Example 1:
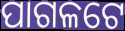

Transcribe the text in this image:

ପାଗଳଟେ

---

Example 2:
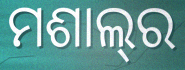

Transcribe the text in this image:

ମଶାଲ୍‌ର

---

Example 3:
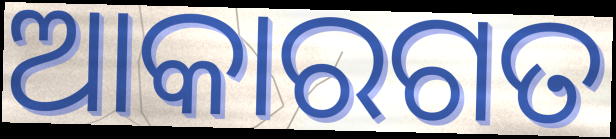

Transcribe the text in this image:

ଆକାରଗତ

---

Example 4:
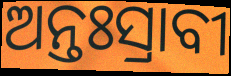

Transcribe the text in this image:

ଅନ୍ତଃସ୍ରାବୀ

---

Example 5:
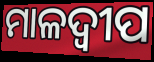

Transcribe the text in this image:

ମାଳଦ୍ବୀପ